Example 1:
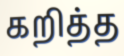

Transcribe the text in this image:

கறித்த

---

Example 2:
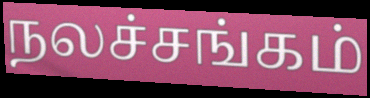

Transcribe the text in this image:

நலச்சங்கம்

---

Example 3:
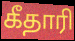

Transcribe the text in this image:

கீதாரி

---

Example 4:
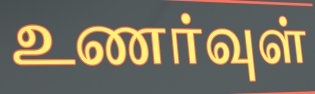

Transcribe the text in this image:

உணர்வுள்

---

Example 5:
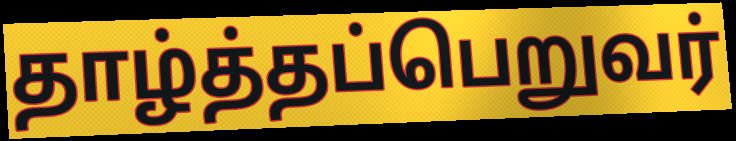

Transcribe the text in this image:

தாழ்த்தப்பெறுவர்